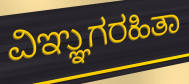
ವಿಞ್ಞುಗರಹಿತಾ